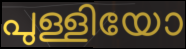
പുള്ളിയോ